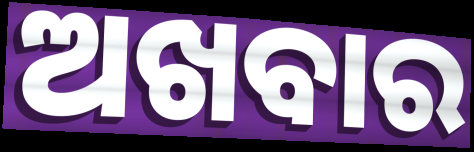
ଅଖବାର